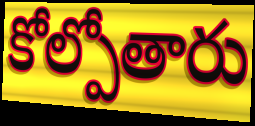
కోల్పోతారు